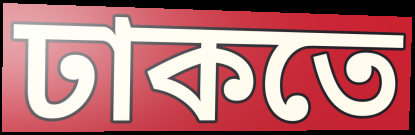
ঢাকতে